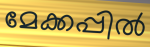
മേക്കപ്പിൽ